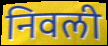
निवली